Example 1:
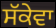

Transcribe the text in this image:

ਸੱਕੇਵਾ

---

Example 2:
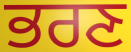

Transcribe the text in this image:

ਭਰਣ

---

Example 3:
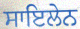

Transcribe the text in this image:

ਸਾਇਲੇਨ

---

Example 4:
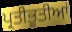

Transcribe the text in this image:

ਪ੍ਰਤੀਭੂਤੀਆਂ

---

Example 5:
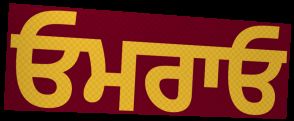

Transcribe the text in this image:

ਓਮਰਾਓ